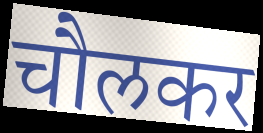
चौलकर